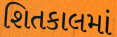
શિતકાલમાં